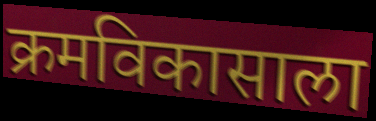
क्रमविकासाला